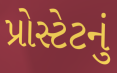
પ્રોસ્ટેટનું